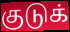
குடுக்